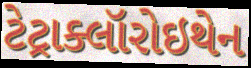
ટેટ્રાક્લૉરોઇથેન